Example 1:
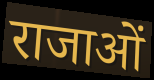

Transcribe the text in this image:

राजाओं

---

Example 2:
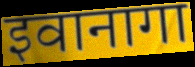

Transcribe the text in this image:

इवानागा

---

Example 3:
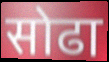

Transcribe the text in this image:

सोढा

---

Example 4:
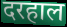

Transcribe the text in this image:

दरहाल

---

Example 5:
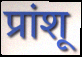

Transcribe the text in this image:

प्रांशू